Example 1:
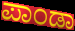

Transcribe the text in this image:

ಪಾಂಡಾ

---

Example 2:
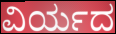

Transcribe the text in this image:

ವಿರ್ಯದ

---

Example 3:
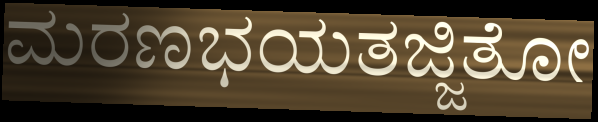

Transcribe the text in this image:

ಮರಣಭಯತಜ್ಜಿತೋ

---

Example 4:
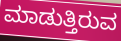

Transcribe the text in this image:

ಮಾಡುತ್ತಿರುವ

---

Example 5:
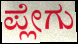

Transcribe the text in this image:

ಪ್ಲೇಗು